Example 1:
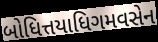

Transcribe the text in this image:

બોધિત્તયાધિગમવસેન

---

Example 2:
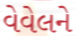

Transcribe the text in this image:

વેવેલને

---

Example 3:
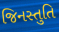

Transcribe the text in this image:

જિનસ્તુતિ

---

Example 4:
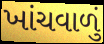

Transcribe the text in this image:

ખાંચવાળું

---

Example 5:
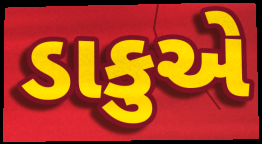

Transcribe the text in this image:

ડાકુએ